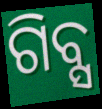
ଗିବ୍ସ